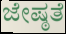
ಜೇಷ್ಠತೆ